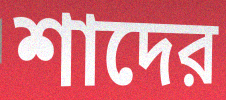
শাদের